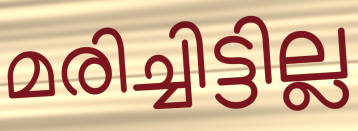
മരിച്ചിട്ടില്ല